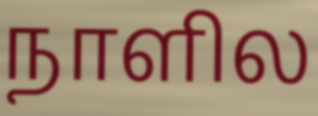
நாளில